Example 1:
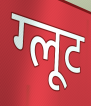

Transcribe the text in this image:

ग्लूट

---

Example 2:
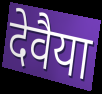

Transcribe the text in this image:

देवैया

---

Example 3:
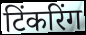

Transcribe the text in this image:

टिंकरिंग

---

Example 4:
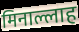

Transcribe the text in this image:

मिनाल्लाह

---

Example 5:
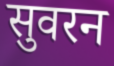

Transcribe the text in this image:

सुवरन